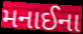
મનાઈના